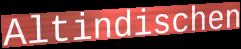
Altindischen